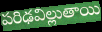
పరిఢవిల్లుతాయి